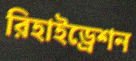
রিহাইড্রেশন